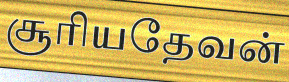
சூரியதேவன்